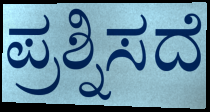
ಪ್ರಶ್ನಿಸದೆ